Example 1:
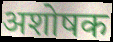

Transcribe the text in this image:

अशोषक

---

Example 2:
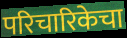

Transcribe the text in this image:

परिचारिकेचा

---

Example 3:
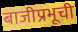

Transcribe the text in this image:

बाजीप्रभूची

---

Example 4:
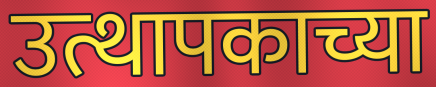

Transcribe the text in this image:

उत्थापकाच्या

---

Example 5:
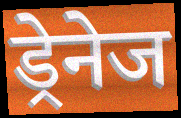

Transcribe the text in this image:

ड्रेनेज